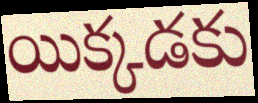
యిక్కడకు